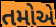
તમોએ